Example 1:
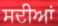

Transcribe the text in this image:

ਸਦੀਆਂ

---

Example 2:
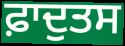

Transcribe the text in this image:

ਫ਼ਾਦੁਤਸ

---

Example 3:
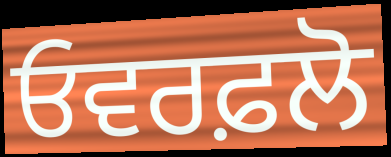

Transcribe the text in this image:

ਓਵਰਫ਼ਲੋ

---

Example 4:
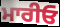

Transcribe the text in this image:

ਮਾਰੀਓ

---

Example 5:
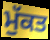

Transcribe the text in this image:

ਮੁੱਕਤ